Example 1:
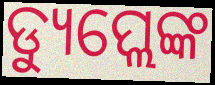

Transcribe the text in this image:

ଡ୍ୟୁପ୍ଲେଙ୍କ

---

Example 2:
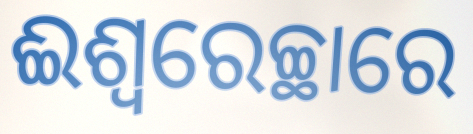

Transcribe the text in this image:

ଈଶ୍ୱରେଚ୍ଛାରେ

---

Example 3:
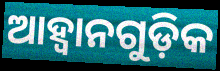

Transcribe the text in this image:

ଆହ୍ବାନଗୁଡ଼ିକ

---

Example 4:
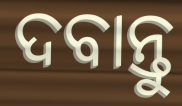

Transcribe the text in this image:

ଦବାନ୍ତୁ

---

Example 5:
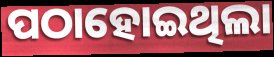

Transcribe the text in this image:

ପଠାହୋଇଥିଲା